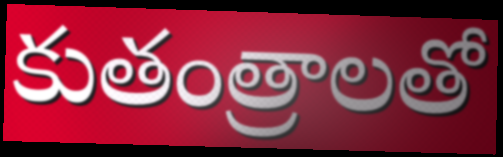
కుతంత్రాలతో